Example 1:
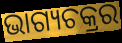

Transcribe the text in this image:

ଭାଗ୍ୟଚକ୍ରର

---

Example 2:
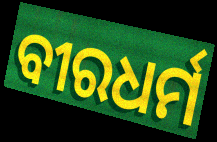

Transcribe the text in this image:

ବୀରଧର୍ମ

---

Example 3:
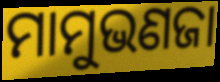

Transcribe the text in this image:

ମାମୁଭଣଜା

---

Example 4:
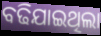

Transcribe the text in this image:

ବଢିଯାଇଥିଲା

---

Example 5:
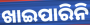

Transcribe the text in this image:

ଖାଇପାରିନି